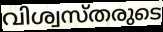
വിശ്വസ്തരുടെ